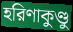
হরিণাকুণ্ডু